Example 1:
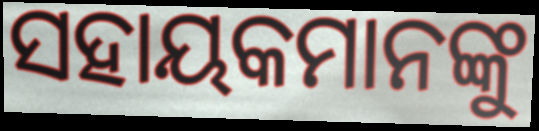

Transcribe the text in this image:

ସହାୟକମାନଙ୍କୁ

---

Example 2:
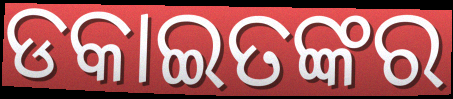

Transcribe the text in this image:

ଡକାଇତଙ୍କର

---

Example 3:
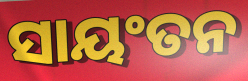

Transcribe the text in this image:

ସାୟଂତନ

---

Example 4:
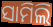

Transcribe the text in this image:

ସାମିଲି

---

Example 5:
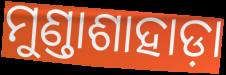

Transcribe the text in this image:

ମୁଣ୍ଡାଶାହାଡ଼ା